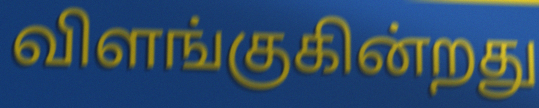
விளங்குகின்றது